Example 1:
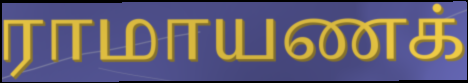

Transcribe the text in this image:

ராமாயணக்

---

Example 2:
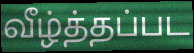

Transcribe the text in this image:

வீழ்த்தப்பட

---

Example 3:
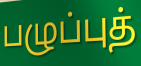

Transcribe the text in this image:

பழுப்புத்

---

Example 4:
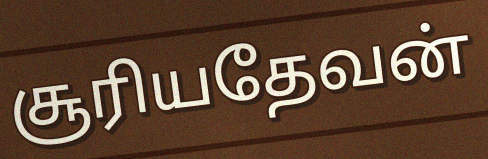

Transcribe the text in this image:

சூரியதேவன்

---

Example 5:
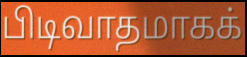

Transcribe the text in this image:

பிடிவாதமாகக்